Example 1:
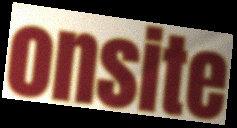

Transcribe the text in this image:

onsite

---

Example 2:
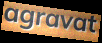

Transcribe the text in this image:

agravat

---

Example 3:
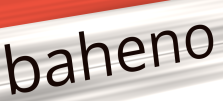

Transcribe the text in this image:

baheno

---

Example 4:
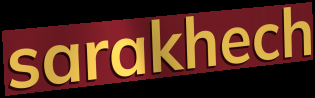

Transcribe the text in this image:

sarakhech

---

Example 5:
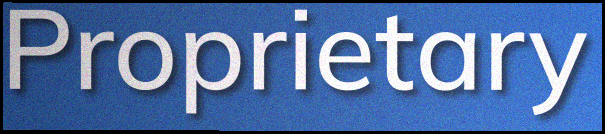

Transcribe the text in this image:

Proprietary